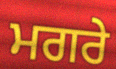
ਮਗਰੇ